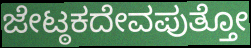
ಜೇಟ್ಠಕದೇವಪುತ್ತೋ